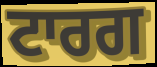
ਟਾਰਗ